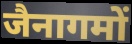
जैनागमों